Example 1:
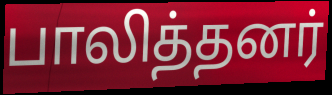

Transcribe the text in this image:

பாலித்தனர்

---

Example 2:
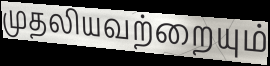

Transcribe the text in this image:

முதலியவற்றையும்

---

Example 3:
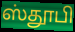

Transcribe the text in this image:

ஸ்தூபி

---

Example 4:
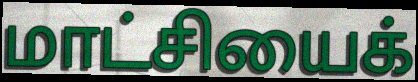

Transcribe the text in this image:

மாட்சியைக்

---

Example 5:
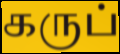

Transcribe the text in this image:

கருப்